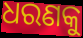
ଧରଣକୁ